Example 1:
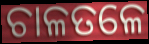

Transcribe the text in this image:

ଚାଳତଳେ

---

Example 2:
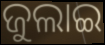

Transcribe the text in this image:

ଜୁଲାଇ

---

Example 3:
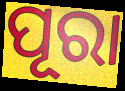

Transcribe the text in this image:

ପୂରା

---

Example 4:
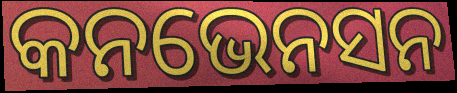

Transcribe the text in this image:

କନଭେନସନ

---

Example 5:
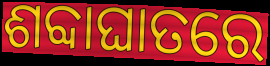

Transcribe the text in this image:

ଶବ୍ଦାଘାତରେ